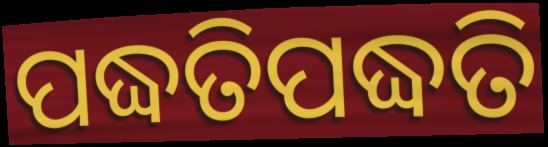
ପଦ୍ଧତିପଦ୍ଧତି